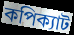
কপিক্যাট